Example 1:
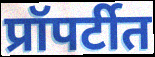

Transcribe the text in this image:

प्रॉपर्टीत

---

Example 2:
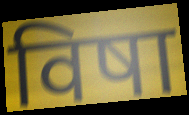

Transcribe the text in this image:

विषा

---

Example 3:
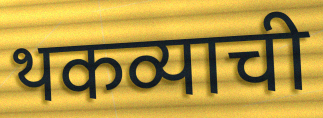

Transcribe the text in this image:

थकव्याची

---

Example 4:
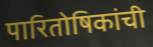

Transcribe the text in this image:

पारितोषिकांची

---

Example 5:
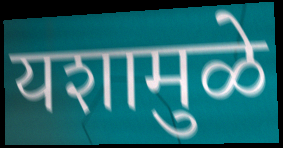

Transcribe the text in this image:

यशामुळे